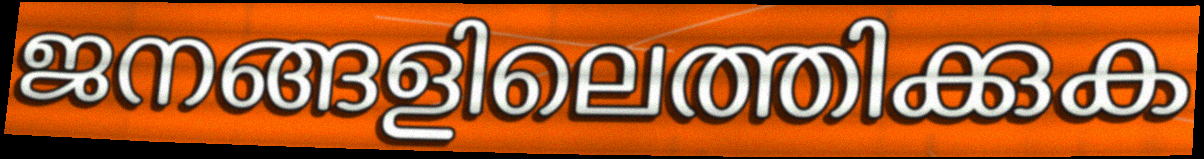
ജനങ്ങളിലെത്തിക്കുക